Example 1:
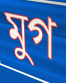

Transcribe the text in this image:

মুগ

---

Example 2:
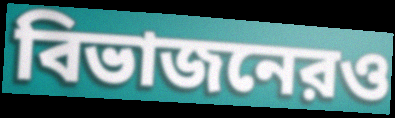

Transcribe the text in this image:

বিভাজনেরও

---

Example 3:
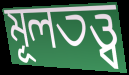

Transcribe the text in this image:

মূলতত্ত্ব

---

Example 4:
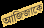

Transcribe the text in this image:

আজিজাকে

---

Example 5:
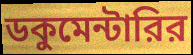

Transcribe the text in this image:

ডকুমেন্টারির